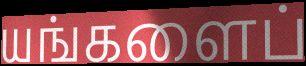
யங்களைப்